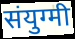
संयुग्मी